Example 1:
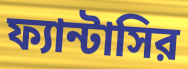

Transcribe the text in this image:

ফ্যান্টাসির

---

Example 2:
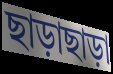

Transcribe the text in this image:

ছাড়াছাড়া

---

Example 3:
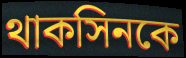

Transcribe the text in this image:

থাকসিনকে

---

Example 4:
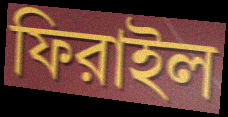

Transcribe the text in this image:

ফিরাইল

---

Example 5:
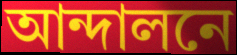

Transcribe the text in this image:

আন্দালনে